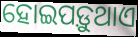
ହୋଇପଡ଼ୁଥାଏ